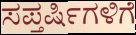
ಸಪ್ತರ್ಷಿಗಳಿಗೆ